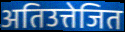
अतिउत्तेजित